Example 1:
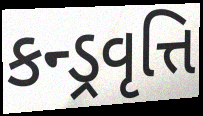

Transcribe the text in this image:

કન્ડ્રવૃત્તિ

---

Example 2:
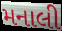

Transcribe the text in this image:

મનાલી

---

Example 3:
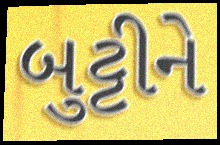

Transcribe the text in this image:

બુટ્ટીને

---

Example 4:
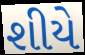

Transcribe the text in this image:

શીયે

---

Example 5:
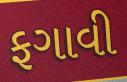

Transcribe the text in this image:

ફગાવી